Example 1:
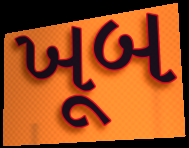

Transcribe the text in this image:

ખૂબ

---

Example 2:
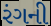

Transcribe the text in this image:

રંગની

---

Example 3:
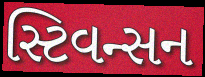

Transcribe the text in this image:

સ્ટિવન્સન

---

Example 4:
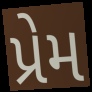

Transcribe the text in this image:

પ્રેમ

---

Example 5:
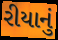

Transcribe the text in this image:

રીયાનું